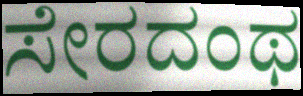
ಸೇರದಂಥ